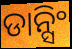
ଡାନ୍ସିଂ